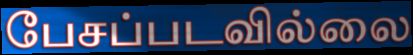
பேசப்படவில்லை